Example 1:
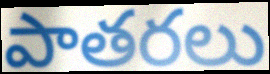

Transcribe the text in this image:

పాతరలు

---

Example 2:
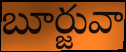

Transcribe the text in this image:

బూర్జువా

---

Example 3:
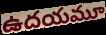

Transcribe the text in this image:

ఉదయమూ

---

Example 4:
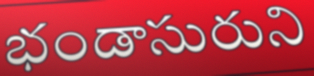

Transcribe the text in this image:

భండాసురుని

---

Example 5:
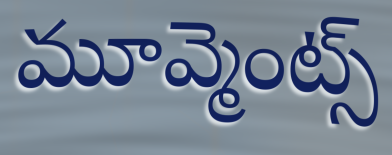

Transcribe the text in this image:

మూవ్మెంట్స్